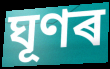
ঘূণৰ